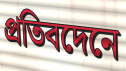
প্রতিবদেনে